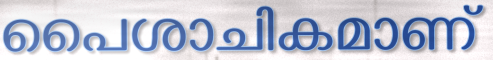
പൈശാചികമാണ്